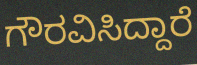
ಗೌರವಿಸಿದ್ದಾರೆ